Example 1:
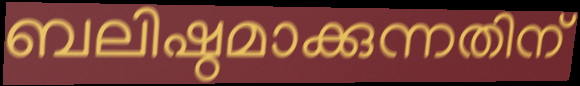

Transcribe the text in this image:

ബലിഷ്ഠമാക്കുന്നതിന്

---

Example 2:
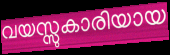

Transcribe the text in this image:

വയസ്സുകാരിയായ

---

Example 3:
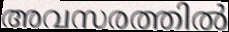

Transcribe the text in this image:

അവസരത്തിൽ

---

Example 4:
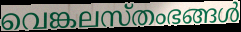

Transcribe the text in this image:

വെങ്കലസ്തംഭങ്ങൾ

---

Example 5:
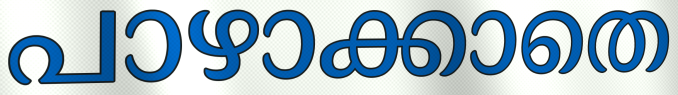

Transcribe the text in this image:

പാഴാക്കാതെ